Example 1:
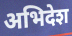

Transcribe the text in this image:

अभिदेश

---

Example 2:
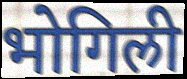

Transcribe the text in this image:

भोगिली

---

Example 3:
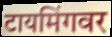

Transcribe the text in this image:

टायमिंगवर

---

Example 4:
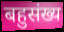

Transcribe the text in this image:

बहुसंख्य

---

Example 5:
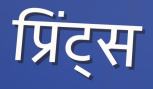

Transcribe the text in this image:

प्रिंट्स